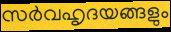
സർവഹൃദയങ്ങളും